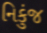
નિકુંજ